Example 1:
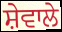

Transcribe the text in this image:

ਸ਼ੇਵਾਲੇ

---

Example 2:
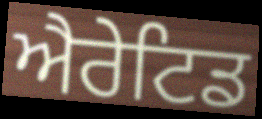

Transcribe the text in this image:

ਐਰੇਟਿਡ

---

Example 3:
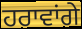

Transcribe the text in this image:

ਹਰਾਵਾਂਗੇ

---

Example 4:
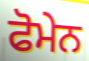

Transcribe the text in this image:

ਫੋਮੇਨ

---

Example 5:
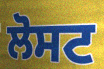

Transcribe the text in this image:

ਲੋਸਟ